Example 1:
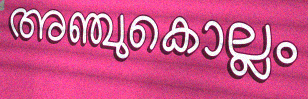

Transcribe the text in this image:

അഞ്ചുകൊല്ലം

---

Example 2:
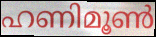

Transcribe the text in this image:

ഹണിമൂൺ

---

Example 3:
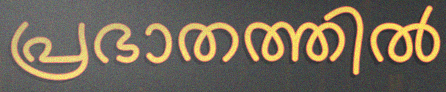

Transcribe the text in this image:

പ്രഭാതത്തിൽ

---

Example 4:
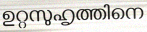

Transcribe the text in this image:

ഉറ്റസുഹൃത്തിനെ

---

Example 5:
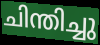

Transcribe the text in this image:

ചിന്തിച്ചു